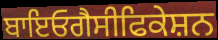
ਬਾਇਓਗੈਸੀਫਿਕੇਸ਼ਨ